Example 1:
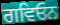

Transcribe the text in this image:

ਗਵਿਓਨ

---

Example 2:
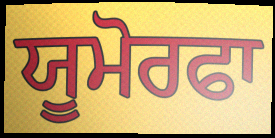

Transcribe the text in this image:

ਯੂਮੋਰਫਾ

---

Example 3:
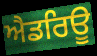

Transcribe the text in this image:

ਐਡਰਿਊ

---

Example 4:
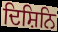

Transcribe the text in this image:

ਦਿਸ਼ਿਨਿ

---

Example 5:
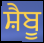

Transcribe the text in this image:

ਸ਼ੈਬੂ